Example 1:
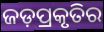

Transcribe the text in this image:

ଜଡ଼ପ୍ରକୃତିର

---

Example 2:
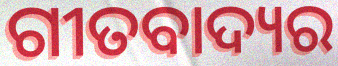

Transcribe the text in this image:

ଗୀତବାଦ୍ୟର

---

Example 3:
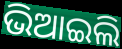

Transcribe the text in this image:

ଭିଆଇଲି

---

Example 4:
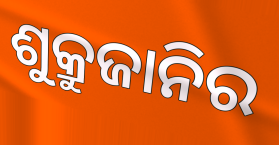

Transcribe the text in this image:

ଶୁକ୍ରୁଜାନିର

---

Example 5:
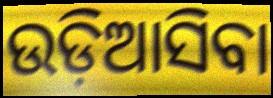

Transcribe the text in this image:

ଉଡ଼ିଆସିବା